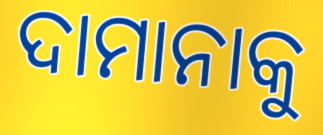
ଦାମାନାକୁ